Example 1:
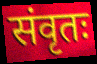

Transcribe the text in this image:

संवृतः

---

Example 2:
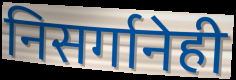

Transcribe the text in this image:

निसर्गानेही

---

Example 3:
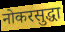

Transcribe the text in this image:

नोकरसुद्धा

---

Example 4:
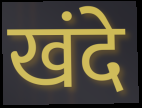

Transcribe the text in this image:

खंदे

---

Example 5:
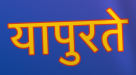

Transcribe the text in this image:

यापुरते